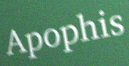
Apophis